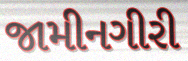
જામીનગીરી